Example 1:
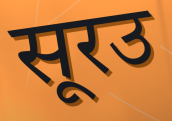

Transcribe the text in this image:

सूरउ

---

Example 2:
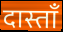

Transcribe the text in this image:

दास्ताँ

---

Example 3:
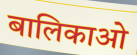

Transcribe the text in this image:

बालिकाओ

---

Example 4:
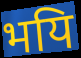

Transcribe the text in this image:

भयि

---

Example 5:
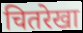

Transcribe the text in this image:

चितरेखा